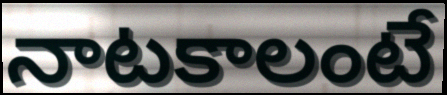
నాటకాలంటే